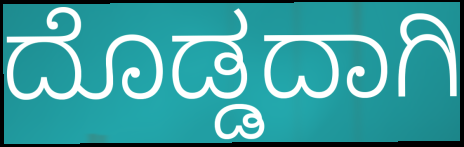
ದೊಡ್ಡದಾಗಿ